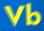
Vb